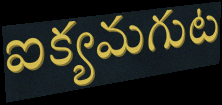
ఐక్యమగుట